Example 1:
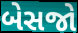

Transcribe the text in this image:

બેસજો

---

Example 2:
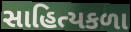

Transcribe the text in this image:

સાહિત્યકળા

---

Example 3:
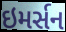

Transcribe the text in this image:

ઇમર્સન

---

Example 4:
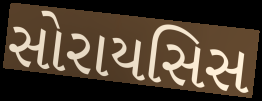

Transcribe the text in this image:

સોરાયસિસ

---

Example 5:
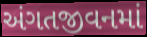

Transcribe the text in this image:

અંગતજીવનમાં